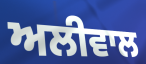
ਅਲੀਵਾਲ